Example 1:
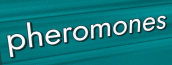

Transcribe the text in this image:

pheromones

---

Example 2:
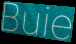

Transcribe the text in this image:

Buie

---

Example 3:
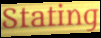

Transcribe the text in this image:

Stating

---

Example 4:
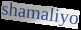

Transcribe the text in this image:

shamaliyo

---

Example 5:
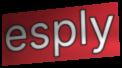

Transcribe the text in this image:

esply